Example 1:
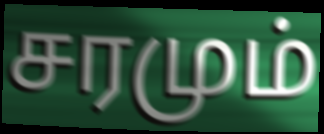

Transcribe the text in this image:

சரமும்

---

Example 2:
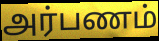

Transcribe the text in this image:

அர்பணம்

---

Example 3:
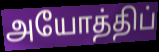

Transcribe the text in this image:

அயோத்திப்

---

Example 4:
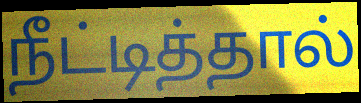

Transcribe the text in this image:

நீட்டித்தால்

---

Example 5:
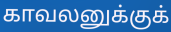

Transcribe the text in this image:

காவலனுக்குக்